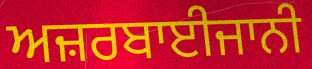
ਅਜ਼ਰਬਾਈਜਾਨੀ